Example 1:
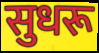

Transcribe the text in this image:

सुधरू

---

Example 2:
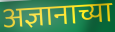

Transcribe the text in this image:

अज्ञानाच्या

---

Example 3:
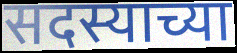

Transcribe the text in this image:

सदस्याच्या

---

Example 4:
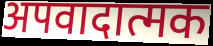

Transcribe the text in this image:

अपवादात्मक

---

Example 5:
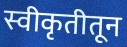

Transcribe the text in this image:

स्वीकृतीतून